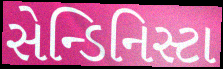
સેન્ડિનિસ્ટા